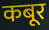
कबूर